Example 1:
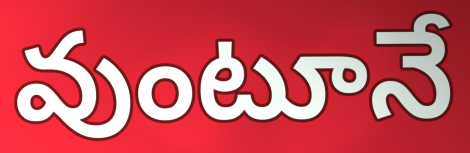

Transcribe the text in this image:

వుంటూనే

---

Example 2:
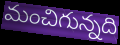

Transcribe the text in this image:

మంచిగున్నది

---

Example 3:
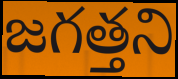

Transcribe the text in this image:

జగత్తని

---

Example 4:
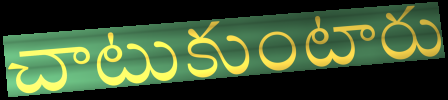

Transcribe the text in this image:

చాటుకుంటారు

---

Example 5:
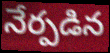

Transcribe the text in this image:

నేర్పడిన